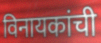
विनायकांची